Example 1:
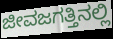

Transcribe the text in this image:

ಜೀವಜಗತ್ತಿನಲ್ಲಿ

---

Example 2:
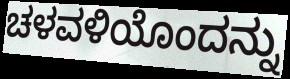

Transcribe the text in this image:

ಚಳವಳಿಯೊಂದನ್ನು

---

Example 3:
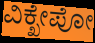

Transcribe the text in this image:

ವಿಕ್ಖೇಪೋ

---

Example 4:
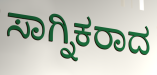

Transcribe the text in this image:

ಸಾಗ್ನಿಕರಾದ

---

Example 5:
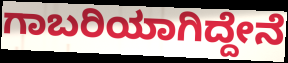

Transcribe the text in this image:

ಗಾಬರಿಯಾಗಿದ್ದೇನೆ